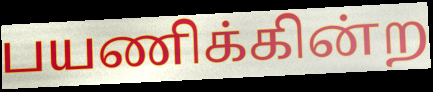
பயணிக்கின்ற